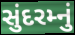
સુંદરમ્નું